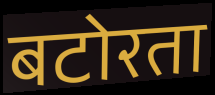
बटोरता